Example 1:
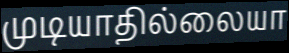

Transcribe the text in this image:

முடியாதில்லையா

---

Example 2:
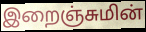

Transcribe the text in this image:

இறைஞ்சுமின்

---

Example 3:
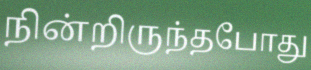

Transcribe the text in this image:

நின்றிருந்தபோது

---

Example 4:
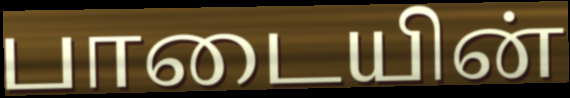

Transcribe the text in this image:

பாடையின்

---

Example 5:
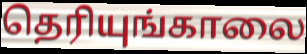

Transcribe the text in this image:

தெரியுங்காலை